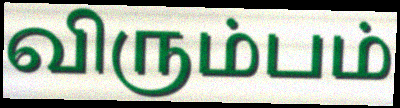
விரும்பம்